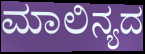
ಮಾಲಿನ್ಯದ